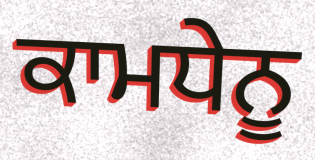
ਕਾਮਧੇਨੂ